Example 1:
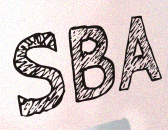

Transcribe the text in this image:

SBA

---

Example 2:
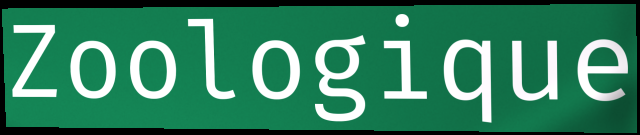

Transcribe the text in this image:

Zoologique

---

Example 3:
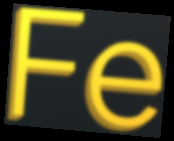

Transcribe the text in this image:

Fe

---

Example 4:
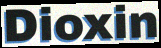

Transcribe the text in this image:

Dioxin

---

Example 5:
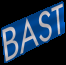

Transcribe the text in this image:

BAST